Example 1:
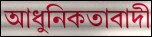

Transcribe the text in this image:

আধুনিকতাবাদী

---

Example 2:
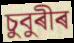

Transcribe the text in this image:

চুবুৰীৰ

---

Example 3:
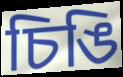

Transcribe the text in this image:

চিঙি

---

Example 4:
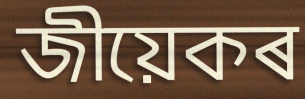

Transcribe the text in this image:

জীয়েকৰ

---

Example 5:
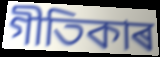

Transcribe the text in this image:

গীতিকাৰ